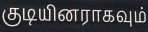
குடியினராகவும்